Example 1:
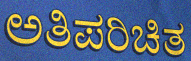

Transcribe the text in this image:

ಅತಿಪರಿಚಿತ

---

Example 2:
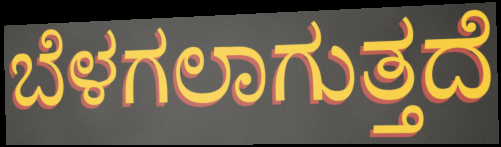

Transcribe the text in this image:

ಬೆಳಗಲಾಗುತ್ತದೆ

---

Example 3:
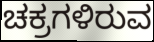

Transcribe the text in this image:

ಚಕ್ರಗಳಿರುವ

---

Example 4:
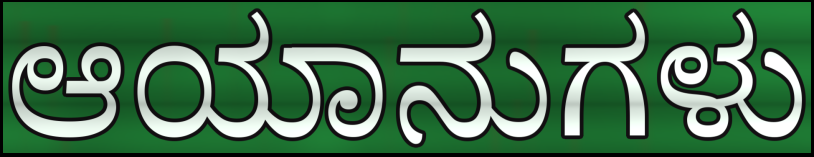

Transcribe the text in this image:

ಆಯಾನುಗಳು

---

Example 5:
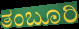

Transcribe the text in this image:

ತಂಬೂರಿ